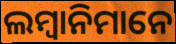
ଲମ୍ବାନିମାନେ